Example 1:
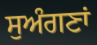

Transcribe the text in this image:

ਸੁਅੰਗਣਾਂ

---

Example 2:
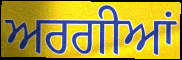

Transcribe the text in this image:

ਅਰਗੀਆਂ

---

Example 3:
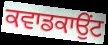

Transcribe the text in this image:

ਕਵਾਡਕਾਉਂਟ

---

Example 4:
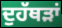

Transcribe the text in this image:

ਦੁਹੱਥੜਾਂ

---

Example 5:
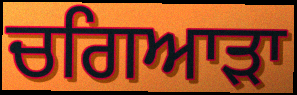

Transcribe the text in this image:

ਚਗਿਆੜਾ